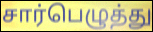
சார்பெழுத்து